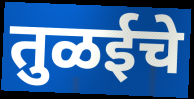
तुळईचे